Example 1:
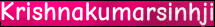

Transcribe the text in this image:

Krishnakumarsinhji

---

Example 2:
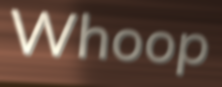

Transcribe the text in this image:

Whoop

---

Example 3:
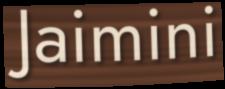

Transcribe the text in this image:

Jaimini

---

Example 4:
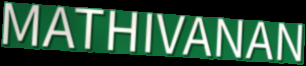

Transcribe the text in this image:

MATHIVANAN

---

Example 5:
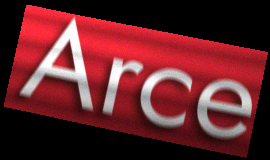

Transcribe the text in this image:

Arce